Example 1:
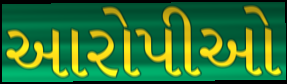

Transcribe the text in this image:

આરોપીઓ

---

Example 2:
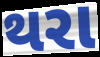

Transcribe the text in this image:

થરા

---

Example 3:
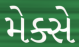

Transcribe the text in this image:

મેક્સે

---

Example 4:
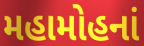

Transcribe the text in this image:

મહામોહનાં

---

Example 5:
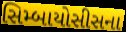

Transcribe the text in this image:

સિમ્બાયોસીસના